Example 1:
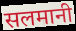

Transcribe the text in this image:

सलमानी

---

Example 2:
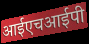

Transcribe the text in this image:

आईएचआईपी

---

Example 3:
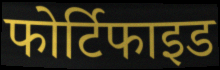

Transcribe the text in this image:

फोर्टिफाइड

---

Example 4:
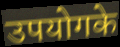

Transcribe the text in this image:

उपयोगके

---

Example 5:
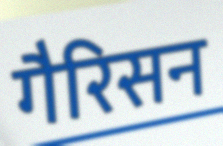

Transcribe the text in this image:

गैरिसन